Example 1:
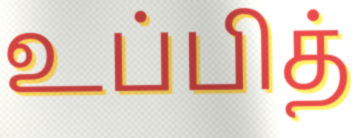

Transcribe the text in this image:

உப்பித்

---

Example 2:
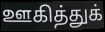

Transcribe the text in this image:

ஊகித்துக்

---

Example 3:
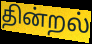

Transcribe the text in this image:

தின்றல்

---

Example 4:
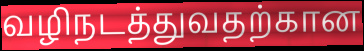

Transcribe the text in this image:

வழிநடத்துவதற்கான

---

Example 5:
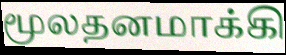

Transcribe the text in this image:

மூலதனமாக்கி